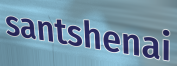
santshenai